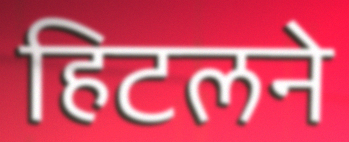
हिटलने